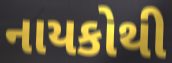
નાયકોથી